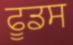
ਫੂਡਸ